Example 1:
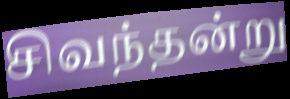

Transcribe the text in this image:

சிவந்தன்று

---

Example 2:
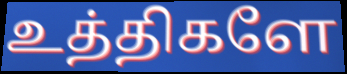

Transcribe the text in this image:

உத்திகளே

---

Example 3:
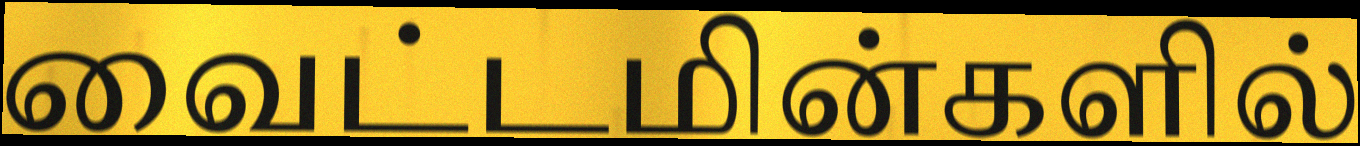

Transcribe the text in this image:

வைட்டமின்களில்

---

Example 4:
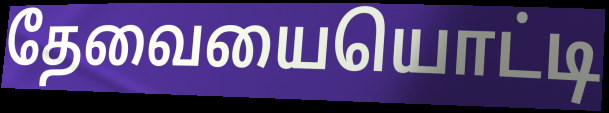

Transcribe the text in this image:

தேவையையொட்டி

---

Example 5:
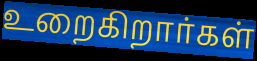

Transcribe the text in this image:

உறைகிறார்கள்